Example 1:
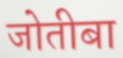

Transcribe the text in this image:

जोतीबा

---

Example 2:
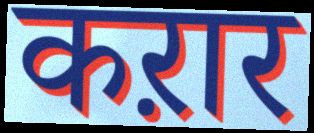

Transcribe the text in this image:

कऱार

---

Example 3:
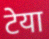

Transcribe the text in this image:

टेया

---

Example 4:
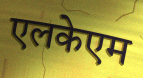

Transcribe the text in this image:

एलकेएम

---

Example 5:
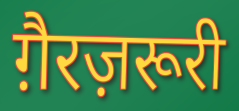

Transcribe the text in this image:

ग़ैरज़रूरी